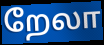
றேலா